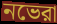
নভেরা